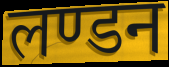
लण्डन